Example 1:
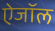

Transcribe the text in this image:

ऐजॉल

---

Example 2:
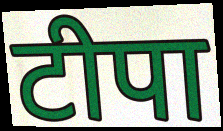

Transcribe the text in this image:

टीपा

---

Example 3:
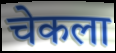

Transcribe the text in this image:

चेकला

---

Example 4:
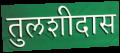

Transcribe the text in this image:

तुलशीदास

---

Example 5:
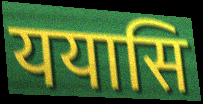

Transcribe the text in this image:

ययासि